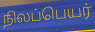
நிலப்பெயர்